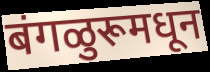
बंगळुरूमधून